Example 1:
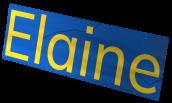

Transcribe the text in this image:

Elaine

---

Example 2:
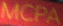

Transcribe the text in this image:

MCPA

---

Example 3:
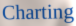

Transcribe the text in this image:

Charting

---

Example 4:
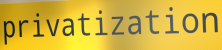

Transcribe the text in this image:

privatization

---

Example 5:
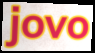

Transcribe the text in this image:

jovo